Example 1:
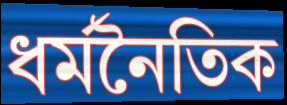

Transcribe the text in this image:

ধর্মনৈতিক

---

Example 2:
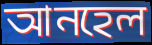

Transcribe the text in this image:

আনহেল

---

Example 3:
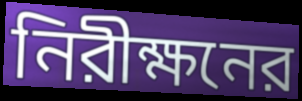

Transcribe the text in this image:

নিরীক্ষনের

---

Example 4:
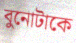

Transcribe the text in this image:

বুনোটাকে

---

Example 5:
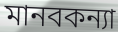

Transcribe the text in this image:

মানবকন্যা